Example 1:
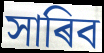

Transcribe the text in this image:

সাৰিব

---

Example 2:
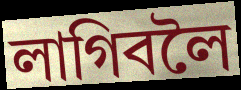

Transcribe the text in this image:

লাগিবলৈ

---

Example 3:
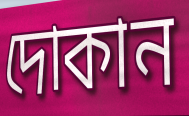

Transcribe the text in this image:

দোকান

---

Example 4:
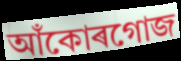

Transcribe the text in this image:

আঁকোৰগোজ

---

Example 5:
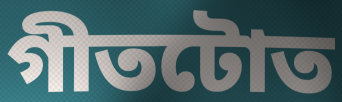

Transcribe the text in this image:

গীতটোত